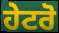
ਹੇਟਰੋ